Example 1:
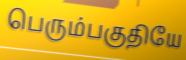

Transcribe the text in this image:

பெரும்பகுதியே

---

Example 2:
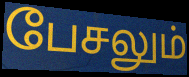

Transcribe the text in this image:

பேசலும்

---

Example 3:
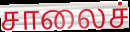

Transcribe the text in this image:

சாலைச்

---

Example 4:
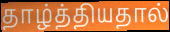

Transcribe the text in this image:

தாழ்த்தியதால்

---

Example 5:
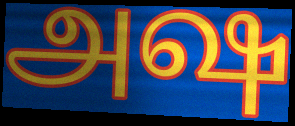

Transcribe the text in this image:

அஷ